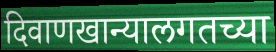
दिवाणखान्यालगतच्या